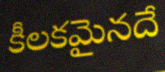
కీలకమైనదే